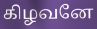
கிழவனே